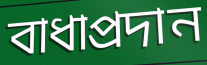
বাধাপ্রদান